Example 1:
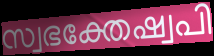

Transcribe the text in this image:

സ്വഭക്തേഷ്വപി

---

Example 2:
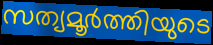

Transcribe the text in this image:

സത്യമൂർത്തിയുടെ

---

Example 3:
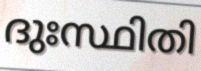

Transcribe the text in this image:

ദുഃസ്ഥിതി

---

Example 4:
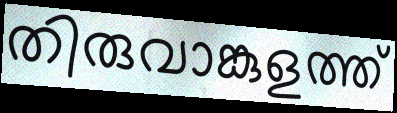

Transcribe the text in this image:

തിരുവാങ്കുളത്ത്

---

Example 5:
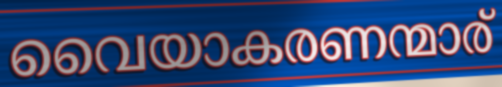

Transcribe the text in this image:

വൈയാകരണന്മാര്